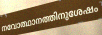
നവോത്ഥാനത്തിനുശേഷം